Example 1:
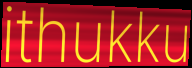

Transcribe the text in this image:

ithukku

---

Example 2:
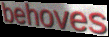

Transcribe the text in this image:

behoves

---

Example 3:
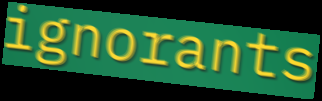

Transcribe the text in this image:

ignorants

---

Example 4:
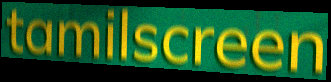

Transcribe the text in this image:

tamilscreen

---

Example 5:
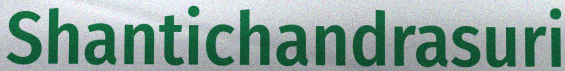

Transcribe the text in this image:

Shantichandrasuri